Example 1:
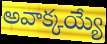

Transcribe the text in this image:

అవాక్కయ్యే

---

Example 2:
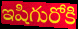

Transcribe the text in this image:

ఇషిగురోకి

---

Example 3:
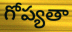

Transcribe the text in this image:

గోప్యతా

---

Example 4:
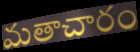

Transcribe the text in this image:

మతాచారం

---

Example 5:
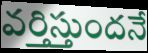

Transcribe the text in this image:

వర్తిస్తుందనే